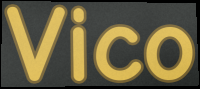
Vico